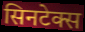
सिनटेक्स